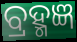
ବ୍ରହ୍ମଜ୍ଞ